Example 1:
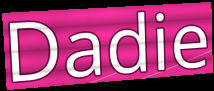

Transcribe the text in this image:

Dadie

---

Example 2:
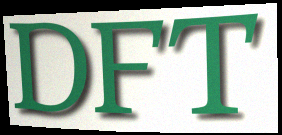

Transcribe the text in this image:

DFT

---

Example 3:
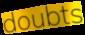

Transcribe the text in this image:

doubts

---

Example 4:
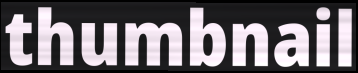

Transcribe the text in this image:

thumbnail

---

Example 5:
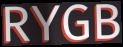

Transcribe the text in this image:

RYGB